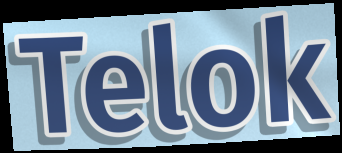
Telok